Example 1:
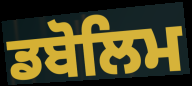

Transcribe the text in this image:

ਡਬੋਲਿਮ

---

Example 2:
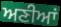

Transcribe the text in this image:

ਅਣੀਆਂ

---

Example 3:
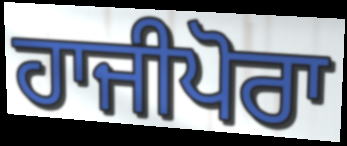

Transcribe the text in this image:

ਹਾਜੀਪੋਰਾ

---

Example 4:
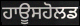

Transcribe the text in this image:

ਹਾਊਸਹੋਲਡ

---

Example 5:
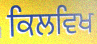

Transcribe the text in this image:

ਕਿਲਵਿਖ